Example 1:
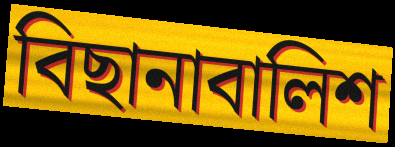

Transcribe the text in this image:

বিছানাবালিশ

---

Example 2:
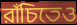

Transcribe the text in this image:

রাঁচিতেও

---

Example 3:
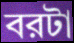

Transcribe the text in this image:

বরটা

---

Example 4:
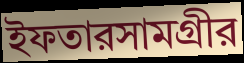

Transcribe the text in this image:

ইফতারসামগ্রীর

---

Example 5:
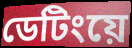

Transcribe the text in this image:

ডেটিংয়ে